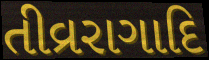
તીવ્રરાગાદિ